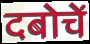
दबोचें